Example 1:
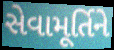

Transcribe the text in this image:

સેવામૂર્તિને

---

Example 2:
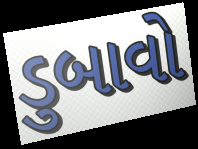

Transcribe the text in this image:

ડુબાવો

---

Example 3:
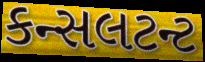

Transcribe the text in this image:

કન્સલટન્ટ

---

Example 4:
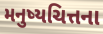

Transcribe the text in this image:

મનુષ્યચિત્તના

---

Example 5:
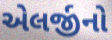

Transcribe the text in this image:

એલર્જીનો